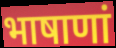
भाषाणां